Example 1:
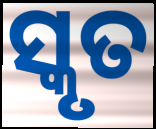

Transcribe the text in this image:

ସ୍କୃତ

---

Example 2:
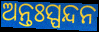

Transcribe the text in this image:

ଅନ୍ତଃସ୍ପନ୍ଦନ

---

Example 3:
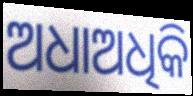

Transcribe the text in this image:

ଅଧାଅଧିକି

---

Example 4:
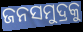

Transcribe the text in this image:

ଜନସମୁଦ୍ରକୁ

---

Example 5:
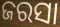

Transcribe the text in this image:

ଜରସା